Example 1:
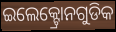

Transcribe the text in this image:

ଇଲେକ୍ଟ୍ରୋନଗୁଡିକ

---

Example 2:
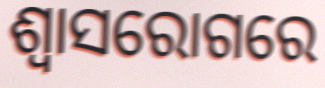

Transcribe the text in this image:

ଶ୍ଵାସରୋଗରେ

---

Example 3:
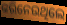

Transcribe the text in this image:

କରିନେଉଥିଲେ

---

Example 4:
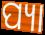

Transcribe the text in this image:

ପ୍ୟା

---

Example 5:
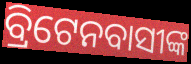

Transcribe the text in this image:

ବ୍ରିଟେନବାସୀଙ୍କ